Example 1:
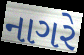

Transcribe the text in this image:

નાગરે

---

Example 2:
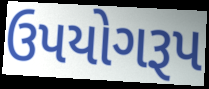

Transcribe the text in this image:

ઉપયોગરૂપ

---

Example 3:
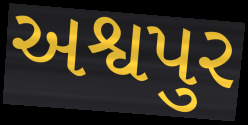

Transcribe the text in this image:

અશ્વપુર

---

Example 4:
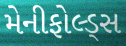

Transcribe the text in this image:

મેનીફોલ્ડ્સ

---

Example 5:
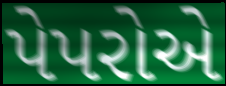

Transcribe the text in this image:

પેપરોએ